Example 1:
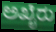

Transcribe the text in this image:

ಅಖೈರು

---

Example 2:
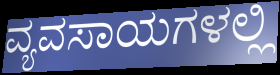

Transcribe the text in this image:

ವ್ಯವಸಾಯಗಳಲ್ಲಿ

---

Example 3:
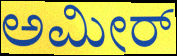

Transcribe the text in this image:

ಅಮೀರ್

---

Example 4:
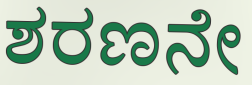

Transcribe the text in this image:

ಶರಣನೇ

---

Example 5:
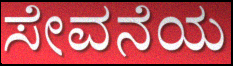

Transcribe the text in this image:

ಸೇವನೆಯ